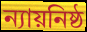
ন্যায়নিষ্ঠ